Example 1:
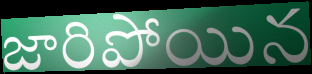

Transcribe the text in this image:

జారిపోయిన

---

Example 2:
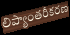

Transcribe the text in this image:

లిప్యాంతరీకరణ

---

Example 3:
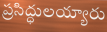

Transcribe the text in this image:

ప్రసిద్ధులయ్యారు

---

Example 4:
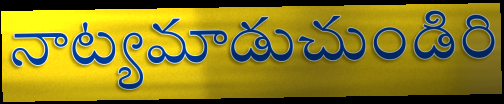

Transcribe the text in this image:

నాట్యమాడుచుండిరి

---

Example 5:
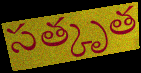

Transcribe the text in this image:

సత్కృత